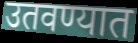
उतवण्यात